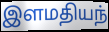
இளமதியந்